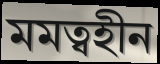
মমত্বহীন